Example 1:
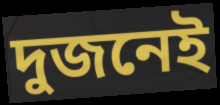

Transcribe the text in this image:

দুজনেই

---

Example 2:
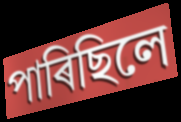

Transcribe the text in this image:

পাৰিছিলে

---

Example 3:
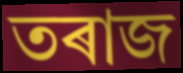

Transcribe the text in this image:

তৰাজ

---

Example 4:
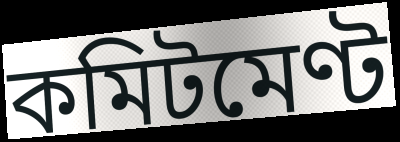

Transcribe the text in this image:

কমিটমেণ্ট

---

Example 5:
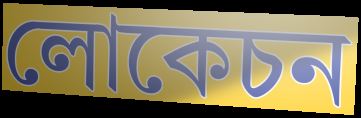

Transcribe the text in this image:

লোকেচন